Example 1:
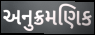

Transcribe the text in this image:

અનુક્રમણિક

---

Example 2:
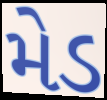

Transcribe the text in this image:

મેડ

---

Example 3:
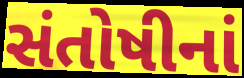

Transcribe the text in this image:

સંતોષીનાં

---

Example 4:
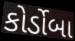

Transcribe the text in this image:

કોર્ડોબા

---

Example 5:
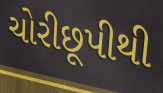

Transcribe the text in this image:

ચોરીછૂપીથી